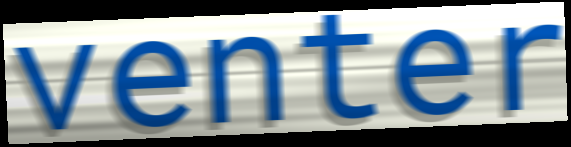
venter